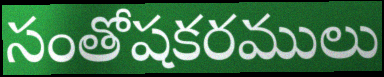
సంతోషకరములు